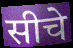
सीचे